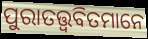
ପୁରାତତ୍ତ୍ୱବିତମାନେ